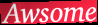
Awsome